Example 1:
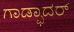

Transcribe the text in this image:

ಗಾಡ್ಫಾದರ್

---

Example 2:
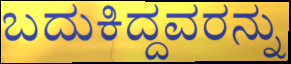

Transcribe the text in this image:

ಬದುಕಿದ್ದವರನ್ನು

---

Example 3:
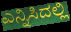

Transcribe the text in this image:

ಎನ್ನಿಸಿದಲ್ಲಿ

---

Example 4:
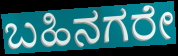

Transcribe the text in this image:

ಬಹಿನಗರೇ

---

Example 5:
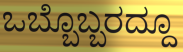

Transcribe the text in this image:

ಒಬ್ಬೊಬ್ಬರದ್ದೂ